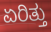
ಏರಿತ್ತು